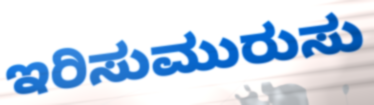
ಇರಿಸುಮುರುಸು